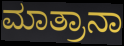
ಮಾತ್ರಾನಾ